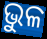
ଭୁଳ